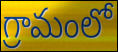
గ్రామంలో